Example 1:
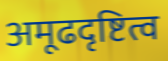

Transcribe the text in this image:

अमूढदृष्टित्व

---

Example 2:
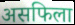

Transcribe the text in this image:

असफिला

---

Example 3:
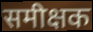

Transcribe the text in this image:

समीक्षक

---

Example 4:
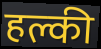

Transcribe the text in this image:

हल्‍की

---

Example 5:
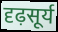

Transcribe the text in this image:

दृढ़सूर्य